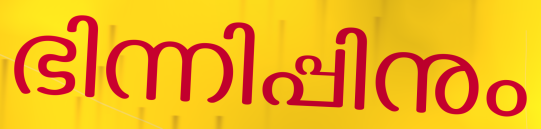
ഭിന്നിപ്പിനും